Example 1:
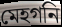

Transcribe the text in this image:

মেহগনি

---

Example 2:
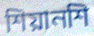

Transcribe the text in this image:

শিয়ানশি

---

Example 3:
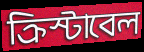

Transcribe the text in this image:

ক্রিস্টাবেল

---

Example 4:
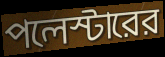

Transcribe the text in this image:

পলেস্টারের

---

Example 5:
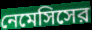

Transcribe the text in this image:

নেমেসিসের